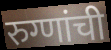
रुग्‍णांची